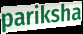
pariksha